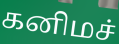
கனிமச்